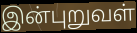
இன்புறுவள்